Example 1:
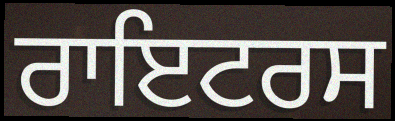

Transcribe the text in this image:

ਰਾਇਟਰਸ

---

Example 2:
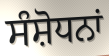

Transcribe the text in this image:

ਸੰਸ਼ੋਧਨਾਂ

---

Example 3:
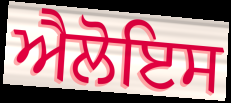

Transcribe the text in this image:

ਐਲੋਇਸ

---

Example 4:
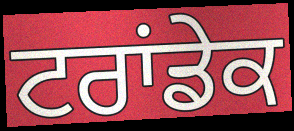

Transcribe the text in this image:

ਟਰਾਂਡੇਕ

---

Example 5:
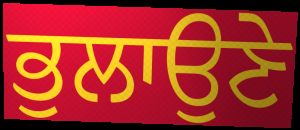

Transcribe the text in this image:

ਭੁਲਾਉਣੇ